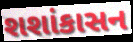
શશાંકાસન